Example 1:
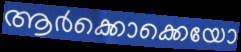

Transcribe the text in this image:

ആർക്കൊക്കെയോ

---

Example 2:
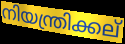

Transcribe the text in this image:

നിയന്ത്രിക്കല്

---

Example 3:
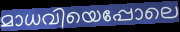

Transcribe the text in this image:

മാധവിയെപ്പോലെ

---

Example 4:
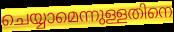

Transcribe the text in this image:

ചെയ്യാമെന്നുള്ളതിനെ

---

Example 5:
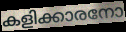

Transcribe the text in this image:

കളിക്കാരനോ